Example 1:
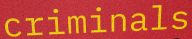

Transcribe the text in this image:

criminals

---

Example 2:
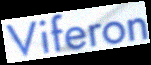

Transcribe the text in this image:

Viferon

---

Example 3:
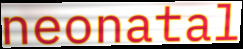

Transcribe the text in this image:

neonatal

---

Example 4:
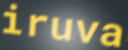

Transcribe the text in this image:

iruva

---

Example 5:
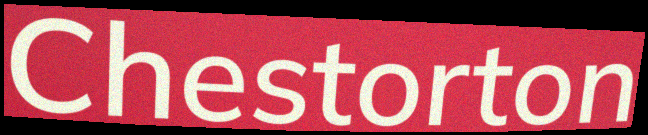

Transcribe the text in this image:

Chestorton